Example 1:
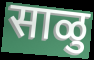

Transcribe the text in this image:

साळु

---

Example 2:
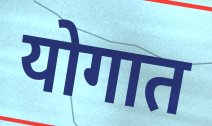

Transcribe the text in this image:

योगात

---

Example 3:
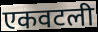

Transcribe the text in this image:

एकवटली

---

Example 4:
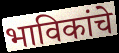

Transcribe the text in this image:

भाविकांचे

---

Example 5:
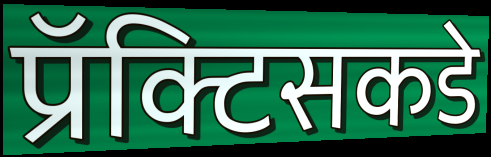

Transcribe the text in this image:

प्रॅक्टिसकडे